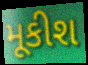
મૂકીશ